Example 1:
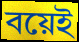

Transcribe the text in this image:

বয়েই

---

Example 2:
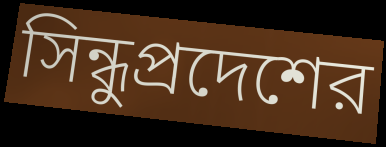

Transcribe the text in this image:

সিন্ধুপ্রদেশের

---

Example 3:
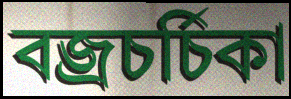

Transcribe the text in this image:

বজ্রচর্চিকা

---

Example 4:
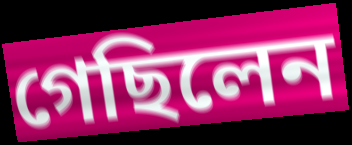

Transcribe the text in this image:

গেছিলেন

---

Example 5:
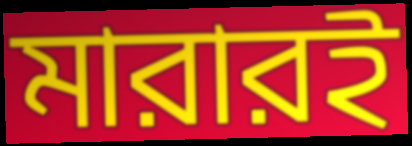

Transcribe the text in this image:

মারারই